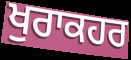
ਖੁਰਾਕਹਰ